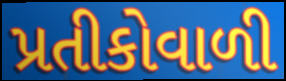
પ્રતીકોવાળી